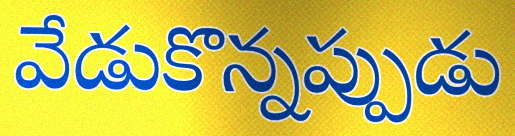
వేడుకొన్నప్పుడు